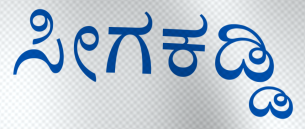
ಸೀಗಕಡ್ಡಿ